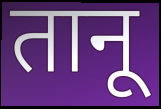
तानू